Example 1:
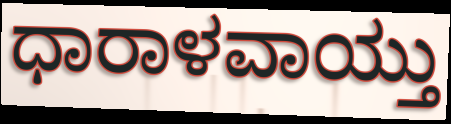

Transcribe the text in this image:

ಧಾರಾಳವಾಯ್ತು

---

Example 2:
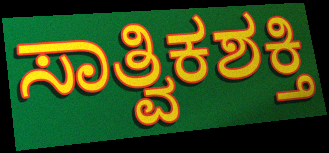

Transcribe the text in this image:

ಸಾತ್ವಿಕಶಕ್ತಿ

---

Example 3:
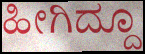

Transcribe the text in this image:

ಹೀಗಿದ್ದೂ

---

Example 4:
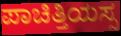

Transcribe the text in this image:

ಪಾಚಿತ್ತಿಯಸ್ಸ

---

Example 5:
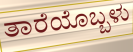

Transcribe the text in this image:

ತಾರೆಯೊಬ್ಬಳು